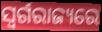
ସ୍ୱର୍ଗରାଜ୍ୟରେ